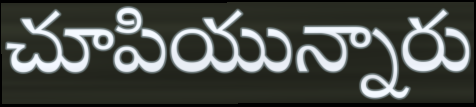
చూపియున్నారు